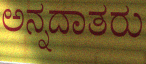
ಅನ್ನದಾತರು